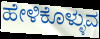
ಹೇಳಿಕೊಳ್ಳುವ